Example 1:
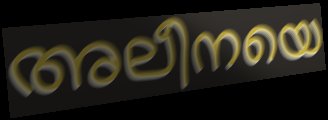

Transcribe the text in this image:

അലീനയെ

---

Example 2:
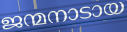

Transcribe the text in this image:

ജന്മനാടായ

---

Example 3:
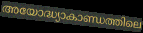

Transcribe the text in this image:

അയോദ്ധ്യാകാണ്ഡത്തിലെ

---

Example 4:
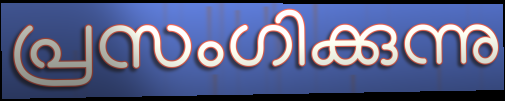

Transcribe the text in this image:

പ്രസംഗിക്കുന്നു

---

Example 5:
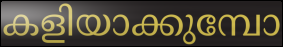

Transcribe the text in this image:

കളിയാക്കുമ്പോ